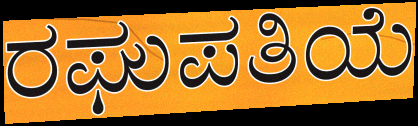
ರಘುಪತಿಯೆ